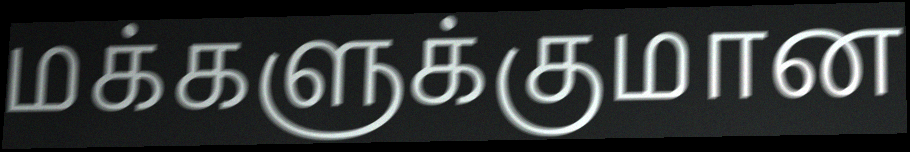
மக்களுக்குமான